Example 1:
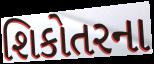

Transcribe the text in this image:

શિકોતરના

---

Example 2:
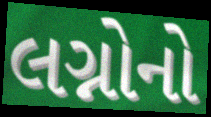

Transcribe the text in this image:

લગ્નોનો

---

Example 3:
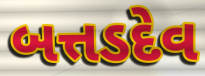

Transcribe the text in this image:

બત્તડદેવ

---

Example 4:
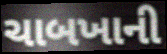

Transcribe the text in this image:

ચાબખાની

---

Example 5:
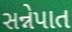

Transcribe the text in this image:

સન્નેપાત